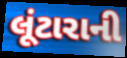
લૂંટારાની